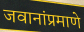
जवानांप्रमाणे